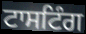
ਟਾਸਟਿੰਗ